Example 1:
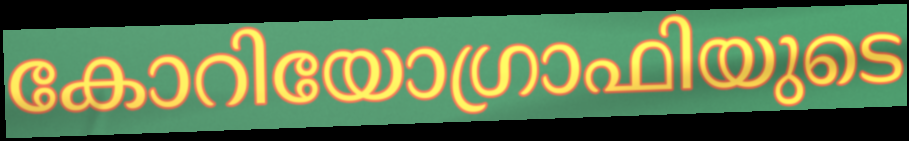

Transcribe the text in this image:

കോറിയോഗ്രാഫിയുടെ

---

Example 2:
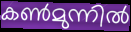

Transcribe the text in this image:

കൺമുന്നിൽ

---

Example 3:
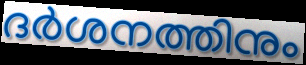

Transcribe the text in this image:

ദർശനത്തിനും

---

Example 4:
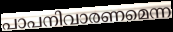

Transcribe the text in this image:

പാപനിവാരണമെന്ന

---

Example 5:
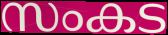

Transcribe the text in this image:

സംകട